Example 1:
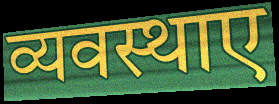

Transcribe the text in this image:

व्यवस्थाए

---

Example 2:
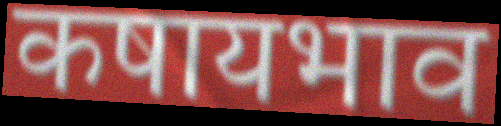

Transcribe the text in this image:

कषायभाव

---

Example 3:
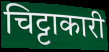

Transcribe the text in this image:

चिट्टाकारी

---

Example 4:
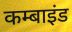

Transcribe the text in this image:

कम्बाइंड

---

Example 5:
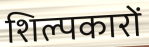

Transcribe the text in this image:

शिल्पकारों